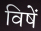
विषें